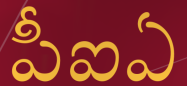
పీఐఏ